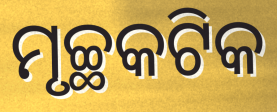
ମୃଚ୍ଛକଟିକ